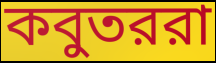
কবুতররা